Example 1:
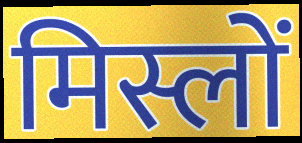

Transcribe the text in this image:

मिस्लों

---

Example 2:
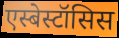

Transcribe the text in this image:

एस्बेस्टॉसिस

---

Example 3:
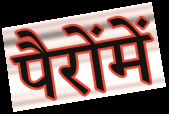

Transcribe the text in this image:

पैरोंमें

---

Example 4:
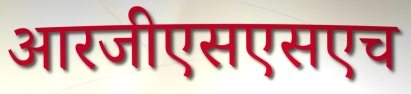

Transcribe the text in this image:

आरजीएसएसएच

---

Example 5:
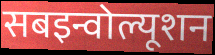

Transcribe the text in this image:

सबइन्वोल्यूशन